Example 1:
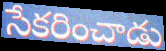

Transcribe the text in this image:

సేకరించాడు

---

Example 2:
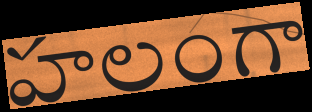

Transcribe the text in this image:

హలంగా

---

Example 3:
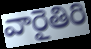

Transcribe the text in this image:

వారైతిరి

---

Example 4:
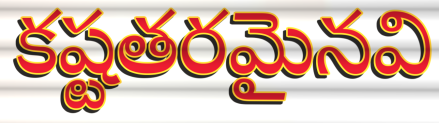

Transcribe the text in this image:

కష్టతరమైనవి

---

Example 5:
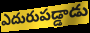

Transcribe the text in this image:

ఎదురుపడ్డాడు